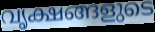
വൃക്ഷങ്ങളുടെ